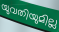
യുവതിയുമില്ല